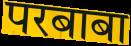
परबाबा